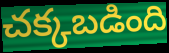
చక్కబడింది